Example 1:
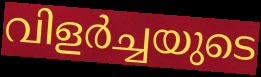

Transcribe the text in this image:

വിളർച്ചയുടെ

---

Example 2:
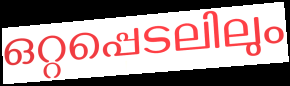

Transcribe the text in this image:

ഒറ്റപ്പെടലിലും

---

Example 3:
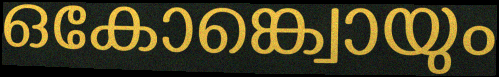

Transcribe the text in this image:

ഒകോങ്ക്വൊയും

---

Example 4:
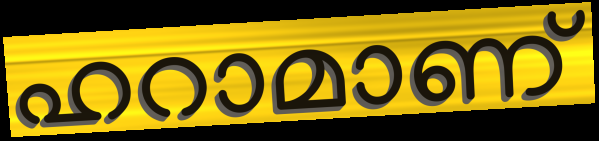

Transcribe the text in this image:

ഹറാമാണ്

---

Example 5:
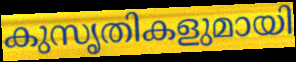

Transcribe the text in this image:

കുസൃതികളുമായി